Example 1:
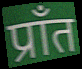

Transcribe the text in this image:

प्राँत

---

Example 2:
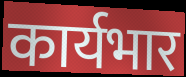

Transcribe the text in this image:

कार्यभार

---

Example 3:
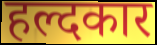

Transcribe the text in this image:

हल्दकार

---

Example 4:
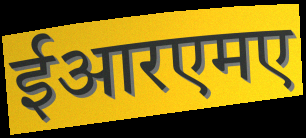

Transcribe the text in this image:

ईआरएमए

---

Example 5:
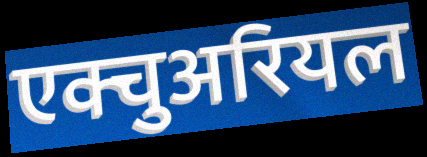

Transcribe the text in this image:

एक्चुअरियल